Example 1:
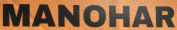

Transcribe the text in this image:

MANOHAR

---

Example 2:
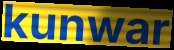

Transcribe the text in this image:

kunwar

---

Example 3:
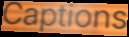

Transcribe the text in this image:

Captions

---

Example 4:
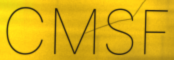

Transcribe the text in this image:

CMSF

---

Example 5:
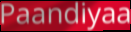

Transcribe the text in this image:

Paandiyaa